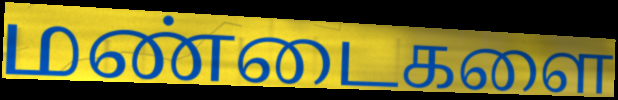
மண்டைகளை